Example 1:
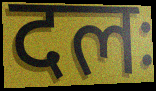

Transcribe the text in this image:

दलः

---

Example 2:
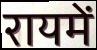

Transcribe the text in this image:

रायमें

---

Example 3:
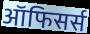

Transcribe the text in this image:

ऑफिसर्स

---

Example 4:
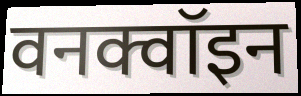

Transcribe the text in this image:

वनक्वॉइन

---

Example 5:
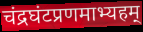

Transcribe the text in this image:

चंद्रघंटप्रणमाभ्यहम्